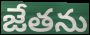
జేతను